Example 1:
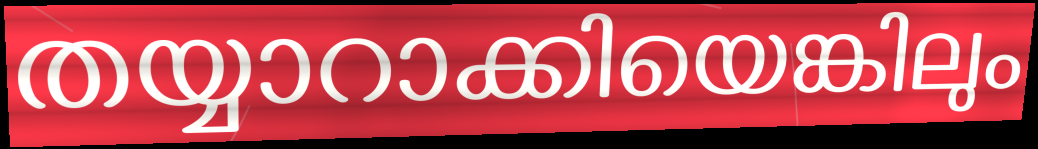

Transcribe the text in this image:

തയ്യാറാക്കിയെങ്കിലും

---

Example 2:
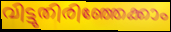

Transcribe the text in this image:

വിട്ടുതിരിഞ്ഞേക്കാം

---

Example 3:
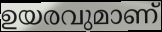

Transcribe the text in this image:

ഉയരവുമാണ്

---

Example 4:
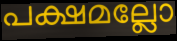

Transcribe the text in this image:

പക്ഷമല്ലോ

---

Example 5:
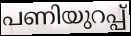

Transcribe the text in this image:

പണിയുറപ്പ്